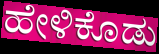
ಹೇಳಿಕೊಡು